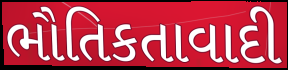
ભૌતિકતાવાદી